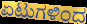
ಏಟುಗಳಿಂದ